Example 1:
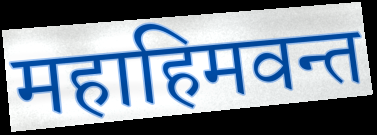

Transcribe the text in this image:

महाहिमवन्त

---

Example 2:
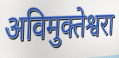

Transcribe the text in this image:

अविमुक्तेश्वरा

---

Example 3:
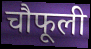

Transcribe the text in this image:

चौफूली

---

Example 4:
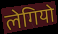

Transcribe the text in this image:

लेगियो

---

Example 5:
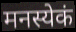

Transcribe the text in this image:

मनस्येकं